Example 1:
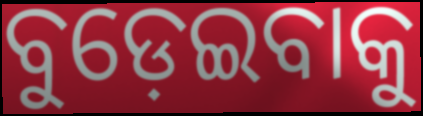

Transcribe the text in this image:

ବୁଡ଼େଇବାକୁ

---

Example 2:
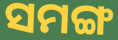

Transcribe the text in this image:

ସମଙ୍ଗ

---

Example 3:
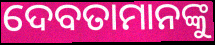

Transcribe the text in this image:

ଦେବତାମାନଙ୍କୁ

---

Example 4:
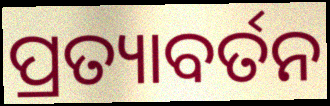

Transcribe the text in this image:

ପ୍ରତ୍ୟାବର୍ତନ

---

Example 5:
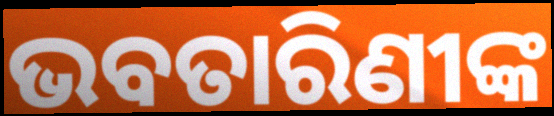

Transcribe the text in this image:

ଭବତାରିଣୀଙ୍କ